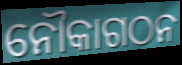
ନୌକାଗଠନ